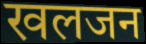
खलजन